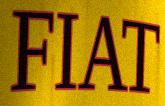
FIAT